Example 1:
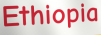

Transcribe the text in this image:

Ethiopia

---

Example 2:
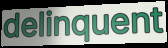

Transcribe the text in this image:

delinquent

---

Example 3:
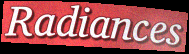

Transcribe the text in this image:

Radiances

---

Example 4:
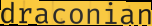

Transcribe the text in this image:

draconian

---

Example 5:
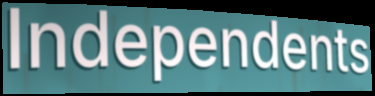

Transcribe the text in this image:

Independents